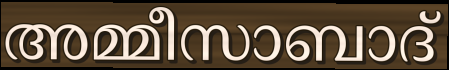
അമ്മീസാബാദ്